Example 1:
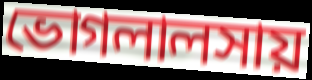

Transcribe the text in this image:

ভোগলালসায়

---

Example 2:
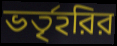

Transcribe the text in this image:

ভর্তৃহরির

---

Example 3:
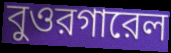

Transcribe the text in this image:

বুওরগারেল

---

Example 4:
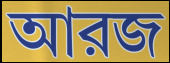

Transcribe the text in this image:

আরজ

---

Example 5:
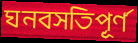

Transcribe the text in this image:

ঘনবসতিপূর্ণ